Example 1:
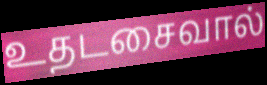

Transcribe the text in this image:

உதடசைவால்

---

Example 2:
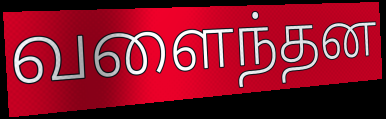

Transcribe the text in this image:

வளைந்தன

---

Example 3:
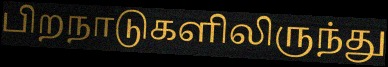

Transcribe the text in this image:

பிறநாடுகளிலிருந்து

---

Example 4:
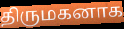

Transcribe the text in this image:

திருமகனாக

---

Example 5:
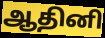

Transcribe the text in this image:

ஆதினி